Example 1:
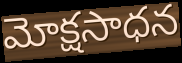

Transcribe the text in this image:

మోక్షసాధన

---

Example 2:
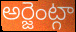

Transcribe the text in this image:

అర్జెంట్గా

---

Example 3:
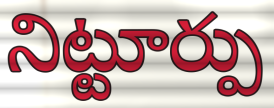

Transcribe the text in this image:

నిట్టూర్పు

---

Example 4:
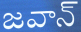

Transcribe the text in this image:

జవాన్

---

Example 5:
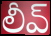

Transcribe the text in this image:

లీవ్